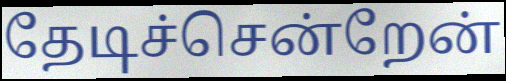
தேடிச்சென்றேன்